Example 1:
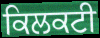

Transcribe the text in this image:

ਕਿਲਕਟੀ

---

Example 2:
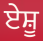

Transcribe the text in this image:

ਏਸ਼ੂ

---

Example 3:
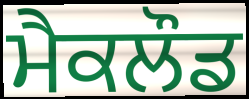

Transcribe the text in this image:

ਮੈਕਲੌਡ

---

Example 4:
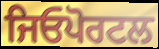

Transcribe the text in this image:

ਜਿਓਪੋਰਟਲ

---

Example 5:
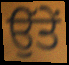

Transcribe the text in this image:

ਉੱਤੇਂ